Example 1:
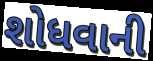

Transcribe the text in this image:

શોધવાની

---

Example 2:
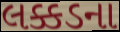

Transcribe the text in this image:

લક્કડના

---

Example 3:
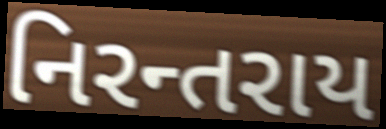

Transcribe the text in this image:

નિરન્તરાય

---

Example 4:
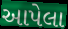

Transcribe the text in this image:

આપેલા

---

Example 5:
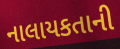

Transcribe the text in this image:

નાલાયકતાની